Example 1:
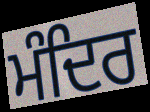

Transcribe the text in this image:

ਮੰਦਿਰ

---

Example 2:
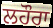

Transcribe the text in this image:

ਲਹੌਰਾ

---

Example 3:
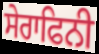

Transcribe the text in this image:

ਸੇਰਾਫਿਨੀ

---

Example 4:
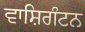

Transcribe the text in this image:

ਵਾਸ਼ਿਗੰਟਨ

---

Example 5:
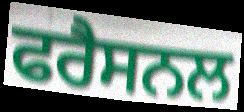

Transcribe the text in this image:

ਫਰੈਸਨਲ